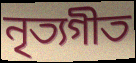
নৃত্যগীত